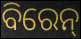
ବିରେନ୍